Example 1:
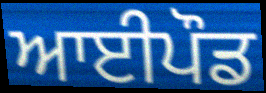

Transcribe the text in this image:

ਆਈਪੌਡ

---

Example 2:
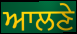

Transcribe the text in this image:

ਆਲਣੇ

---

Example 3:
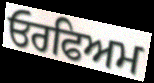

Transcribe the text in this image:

ਓਰਫਿਅਮ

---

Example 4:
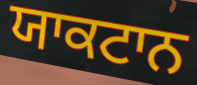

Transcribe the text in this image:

ਯਾਕਟਾਨ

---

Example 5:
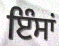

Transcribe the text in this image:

ਇੰਸਾਂ